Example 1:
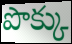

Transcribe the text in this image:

పొక్కు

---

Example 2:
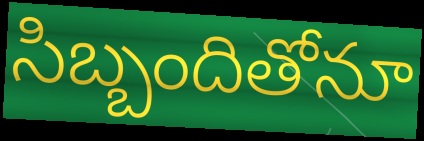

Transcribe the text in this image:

సిబ్బందితోనూ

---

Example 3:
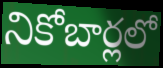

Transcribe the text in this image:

నికోబార్లలో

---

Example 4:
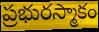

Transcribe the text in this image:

ప్రభురస్మాకం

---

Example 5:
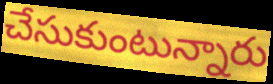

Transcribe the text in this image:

చేసుకుంటున్నారు